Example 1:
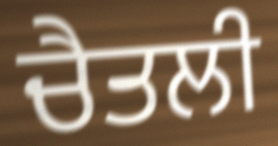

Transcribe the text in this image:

ਚੈਤਲੀ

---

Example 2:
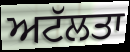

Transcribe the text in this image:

ਅਟੱਲਤਾ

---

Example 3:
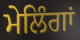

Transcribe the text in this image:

ਮੇਲਿੰਗਾਂ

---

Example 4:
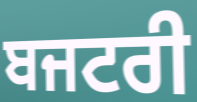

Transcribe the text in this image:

ਬਜਟਰੀ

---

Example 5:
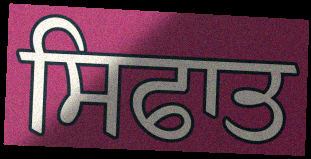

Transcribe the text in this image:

ਸਿਫਾਤ